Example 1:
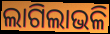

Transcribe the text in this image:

ଲାଗିଲାଭଳି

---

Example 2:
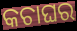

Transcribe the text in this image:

କଚାଘର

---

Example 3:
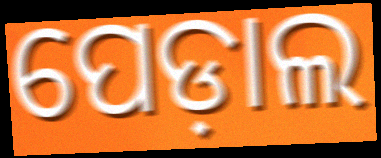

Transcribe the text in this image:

ପେଡ଼ାଲ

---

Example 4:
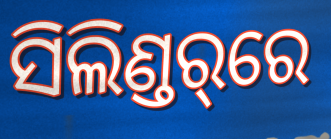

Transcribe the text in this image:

ସିଲିଣ୍ଡର୍‌ରେ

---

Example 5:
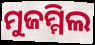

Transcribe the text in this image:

ମୁଜମ୍ମିଲ